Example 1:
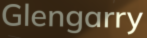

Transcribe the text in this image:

Glengarry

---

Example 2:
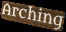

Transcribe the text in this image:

Arching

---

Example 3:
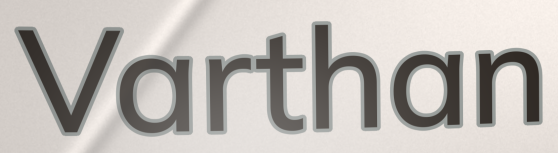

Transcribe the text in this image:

Varthan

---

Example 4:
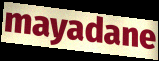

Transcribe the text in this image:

mayadane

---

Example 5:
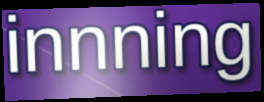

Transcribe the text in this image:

innning